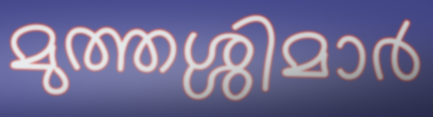
മുത്തശ്ശിമാർ